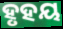
ହୃହୟ